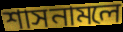
শাসনামলে